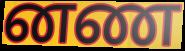
னண